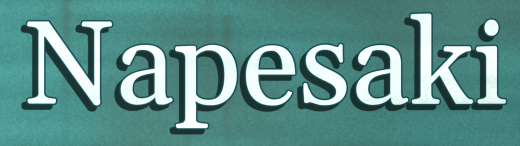
Napesaki